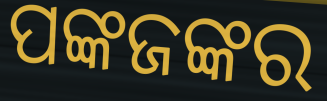
ପଙ୍କଜଙ୍କର